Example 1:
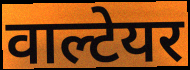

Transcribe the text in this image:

वाल्टेयर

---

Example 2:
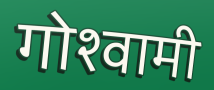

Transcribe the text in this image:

गोश्वामी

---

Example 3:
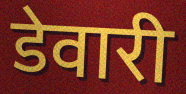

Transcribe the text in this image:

डेवारी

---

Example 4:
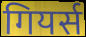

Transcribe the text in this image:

गियर्स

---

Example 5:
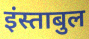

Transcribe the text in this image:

इंस्ताबुल